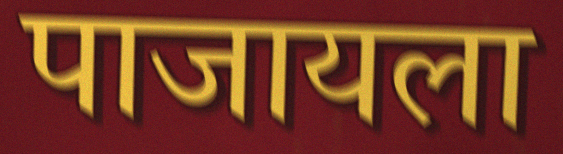
पाजायला